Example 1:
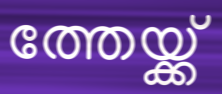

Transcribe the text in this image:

ത്തേയ്ക്ക്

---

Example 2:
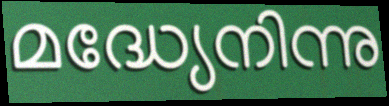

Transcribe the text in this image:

മദ്ധ്യേനിന്നു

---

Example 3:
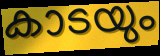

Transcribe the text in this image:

കാടയും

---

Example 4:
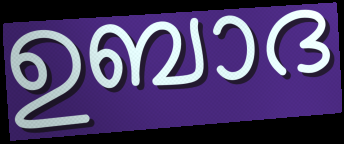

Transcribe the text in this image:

ഉബാദ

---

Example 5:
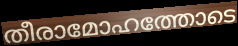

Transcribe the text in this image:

തീരാമോഹത്തോടെ